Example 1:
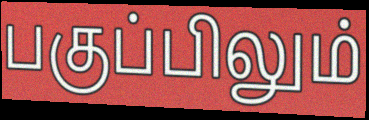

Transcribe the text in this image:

பகுப்பிலும்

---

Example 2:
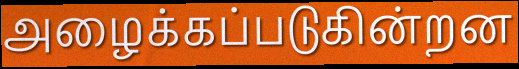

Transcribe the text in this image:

அழைக்கப்படுகின்றன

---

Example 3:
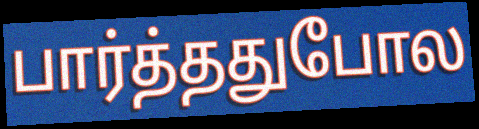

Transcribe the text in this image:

பார்த்ததுபோல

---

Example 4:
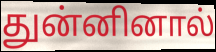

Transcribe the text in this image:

துன்னினால்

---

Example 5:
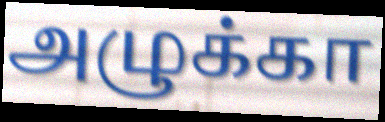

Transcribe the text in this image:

அழுக்கா